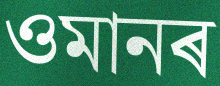
ওমানৰ